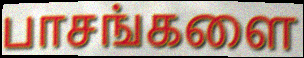
பாசங்களை